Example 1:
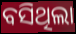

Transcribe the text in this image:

ବସିଥିଲା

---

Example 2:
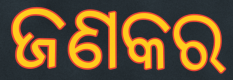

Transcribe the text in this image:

ଜଣକର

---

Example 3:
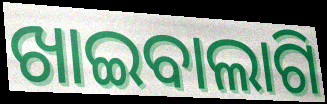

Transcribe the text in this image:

ଖାଇବାଲାଗି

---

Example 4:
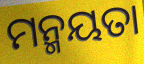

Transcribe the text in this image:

ମନ୍ମୟତା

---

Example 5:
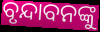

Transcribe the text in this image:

ବୃନ୍ଦାବନଙ୍କୁ